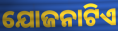
ଯୋଜନାଟିଏ